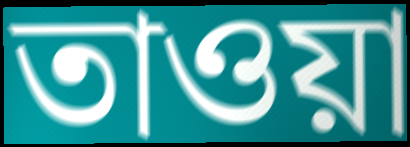
তাওয়া